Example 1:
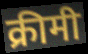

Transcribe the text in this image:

क्रीमी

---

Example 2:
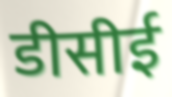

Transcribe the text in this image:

डीसीई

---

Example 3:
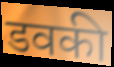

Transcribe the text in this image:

डवकी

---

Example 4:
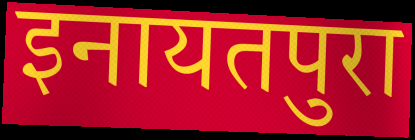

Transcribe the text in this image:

इनायतपुरा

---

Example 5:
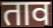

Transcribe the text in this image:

ताव